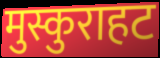
मुस्कुराहट